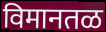
विमानतळ